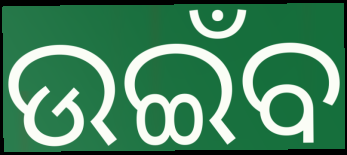
ଉଇଁବ